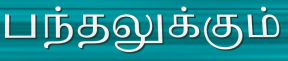
பந்தலுக்கும்